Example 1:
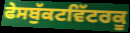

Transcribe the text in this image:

ਫੇਸਬੁੱਕਟਵਿੱਟਰਕੂ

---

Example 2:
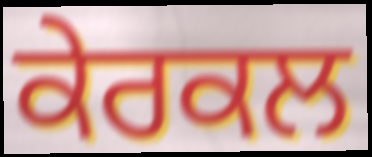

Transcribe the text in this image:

ਕੇਰਕਲ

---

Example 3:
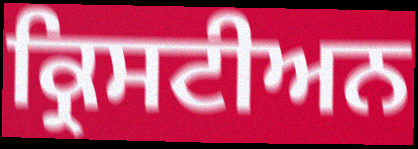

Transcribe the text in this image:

ਕ੍ਰਿਸਟੀਅਨ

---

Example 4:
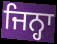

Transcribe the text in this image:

ਜਿਨ੍ਹ੍ਹਾ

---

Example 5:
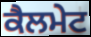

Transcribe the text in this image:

ਕੈਲਮੇਟ